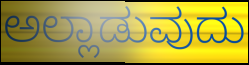
ಅಲ್ಲಾಡುವುದು